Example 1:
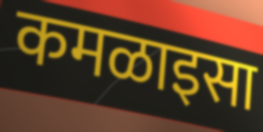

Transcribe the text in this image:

कमळाइसा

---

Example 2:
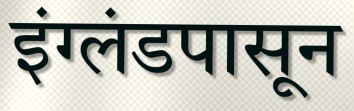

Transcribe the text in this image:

इंग्लंडपासून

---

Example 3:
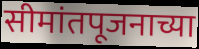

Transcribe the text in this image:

सीमांतपूजनाच्या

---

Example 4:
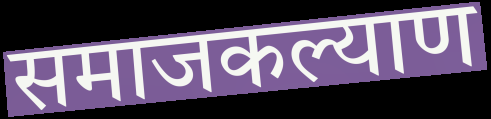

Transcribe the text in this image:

समाजकल्याण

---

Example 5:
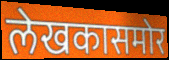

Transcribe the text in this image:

लेखकासमोर